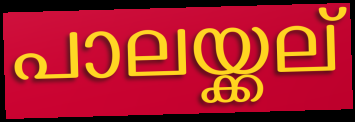
പാലയ്ക്കല്